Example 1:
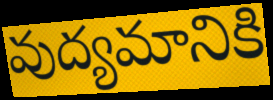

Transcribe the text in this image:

వుద్యమానికి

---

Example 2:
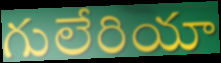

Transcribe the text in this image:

గులేరియా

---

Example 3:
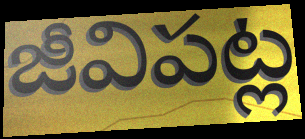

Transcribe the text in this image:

జీవిపట్ల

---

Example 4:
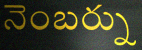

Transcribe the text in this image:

నెంబర్ను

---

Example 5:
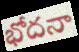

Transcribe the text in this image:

భోదనా